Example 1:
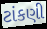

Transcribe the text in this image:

ટાંકણી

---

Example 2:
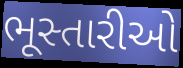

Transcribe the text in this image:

ભૂસ્તારીઓ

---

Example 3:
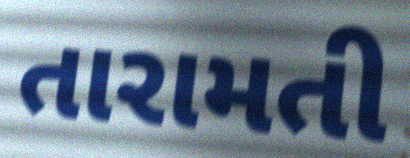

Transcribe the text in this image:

તારામતી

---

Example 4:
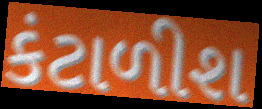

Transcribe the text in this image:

કંટાળીશ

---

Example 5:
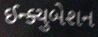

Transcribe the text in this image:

ઈન્ક્યુબેશન